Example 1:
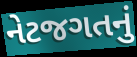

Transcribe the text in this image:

નેટજગતનું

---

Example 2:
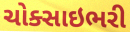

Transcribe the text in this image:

ચોક્સાઇભરી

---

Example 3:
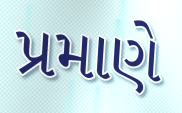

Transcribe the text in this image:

પ્રમાણે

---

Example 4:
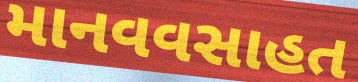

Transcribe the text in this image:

માનવવસાહત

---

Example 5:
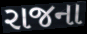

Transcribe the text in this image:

રાજના